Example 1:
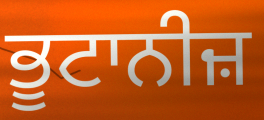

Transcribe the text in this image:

ਭੂਟਾਨੀਜ਼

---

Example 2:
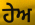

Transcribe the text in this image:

ਹੇਅ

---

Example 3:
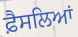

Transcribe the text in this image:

ਫ਼ੈਸਲਿਆਂ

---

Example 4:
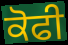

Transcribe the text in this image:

ਕੋਫੀ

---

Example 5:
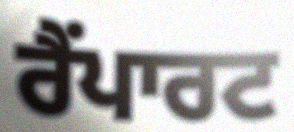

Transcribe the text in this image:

ਰੈਂਪਾਰਟ